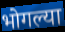
भोगल्या